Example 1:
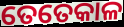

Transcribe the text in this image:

ତେତେକାଳ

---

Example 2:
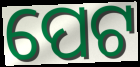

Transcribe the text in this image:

ପେଟ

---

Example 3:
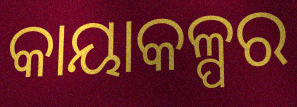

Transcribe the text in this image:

କାୟାକଳ୍ପର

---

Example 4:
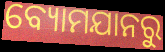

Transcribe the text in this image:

ବ୍ୟୋମଯାନରୁ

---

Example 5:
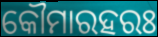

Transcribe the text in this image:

କୌମାରହରଃ